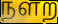
நளற